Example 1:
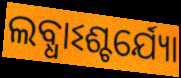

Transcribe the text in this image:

ଲବ୍ଧାଽଶ୍ଚର୍ଯ୍ୟୋ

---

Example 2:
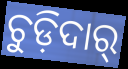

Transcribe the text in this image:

ଚୁଡ଼ିଦାର୍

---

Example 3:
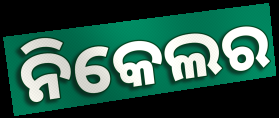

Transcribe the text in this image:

ନିକେଲର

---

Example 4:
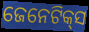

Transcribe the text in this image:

ଜେନେଟିକ୍‌ସ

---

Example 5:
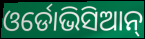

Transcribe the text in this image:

ଓର୍ଡୋଭିସିଆନ୍